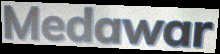
Medawar